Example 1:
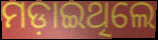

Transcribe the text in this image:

ମଡ଼ାଇଥିଲେ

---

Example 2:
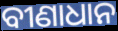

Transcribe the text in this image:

ବୀଣାଧାନ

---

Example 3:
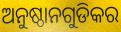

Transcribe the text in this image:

ଅନୁଷ୍ଠାନଗୁଡିକର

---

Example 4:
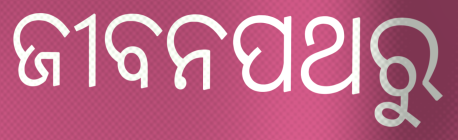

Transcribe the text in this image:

ଜୀବନପଥରୁ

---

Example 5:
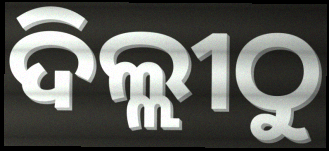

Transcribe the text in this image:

ଦିଲ୍ଲୀଠୁ